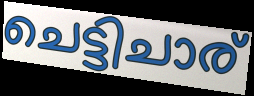
ചെട്ടിചാര്